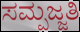
ಸಮ್ಪಜ್ಜತಿ